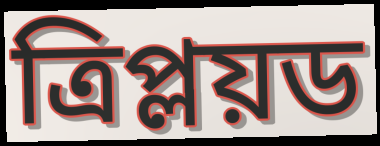
ত্রিপ্লয়ড